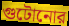
গুটোনোর